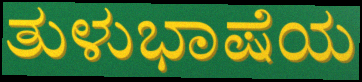
ತುಳುಭಾಷೆಯ